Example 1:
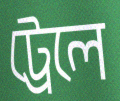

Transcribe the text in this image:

ট্রেলে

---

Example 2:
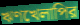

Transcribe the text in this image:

ঋণখেলাপির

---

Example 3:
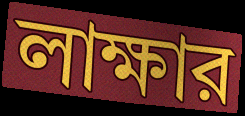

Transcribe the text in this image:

লাক্ষার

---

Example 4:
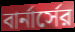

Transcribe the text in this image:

বার্নার্সের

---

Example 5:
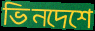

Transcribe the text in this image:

ভিনদেশে